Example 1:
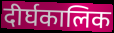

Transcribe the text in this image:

दीर्घकालिक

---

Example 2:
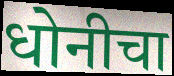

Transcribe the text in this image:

धोनीचा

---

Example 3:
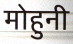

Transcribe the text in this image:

मोहुनी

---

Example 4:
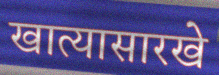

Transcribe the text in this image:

खात्यासारखे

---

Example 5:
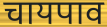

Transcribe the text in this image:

चायपाव